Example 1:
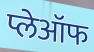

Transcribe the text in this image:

प्लेऑफ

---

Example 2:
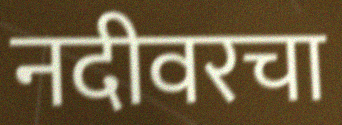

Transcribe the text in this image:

नदीवरचा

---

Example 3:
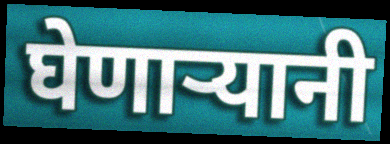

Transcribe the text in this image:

घेणाऱ्यानी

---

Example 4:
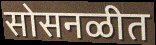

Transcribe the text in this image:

सोसनळीत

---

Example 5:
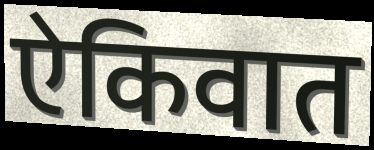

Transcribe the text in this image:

ऐकिवात